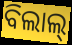
ବିଲାଲ୍